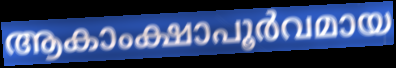
ആകാംക്ഷാപൂർവമായ